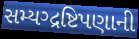
સમ્યગ્દ્રષ્ટિપણાની